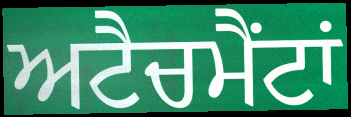
ਅਟੈਚਮੈਂਟਾਂ